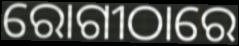
ରୋଗୀଠାରେ